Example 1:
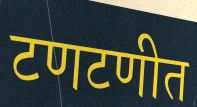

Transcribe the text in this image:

टणटणीत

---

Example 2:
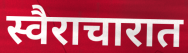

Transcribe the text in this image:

स्वैराचारात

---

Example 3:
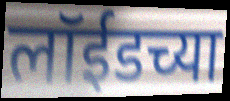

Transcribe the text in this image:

लॉईडच्या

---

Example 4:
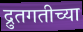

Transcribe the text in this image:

द्रुतगतीच्या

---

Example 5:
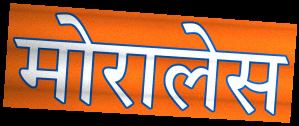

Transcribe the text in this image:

मोरालेस